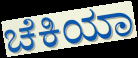
ಚೆಕಿಯಾ